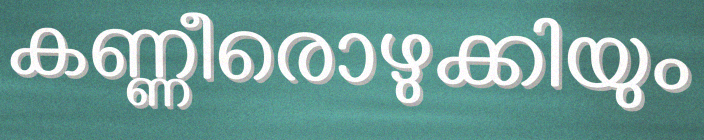
കണ്ണീരൊഴുക്കിയും